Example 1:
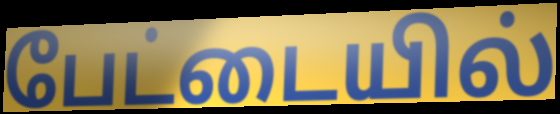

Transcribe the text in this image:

பேட்டையில்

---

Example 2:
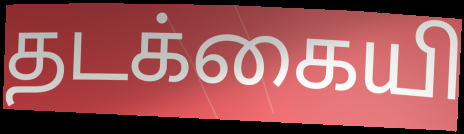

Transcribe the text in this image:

தடக்கையி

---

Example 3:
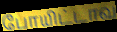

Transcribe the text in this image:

போயிட்டாவ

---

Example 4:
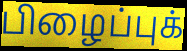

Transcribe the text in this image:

பிழைப்புக்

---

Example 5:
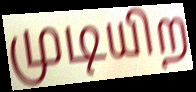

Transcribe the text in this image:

முடியிற